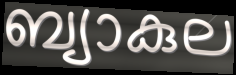
ബ്യാകുല